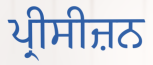
ਪ੍ਰੀਸੀਜ਼ਨ